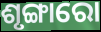
ଶୃଙ୍ଗାରୋ